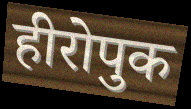
हीरोपुक